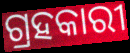
ଗ୍ରହକାରୀ